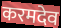
करमदेव